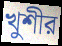
খুশীর